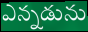
ఎన్నడును